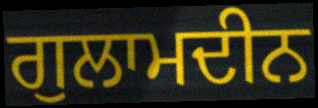
ਗੁਲਾਮਦੀਨ